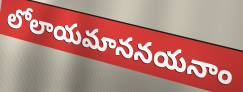
లోలాయమాననయనాం